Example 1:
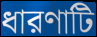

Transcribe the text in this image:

ধারণাটি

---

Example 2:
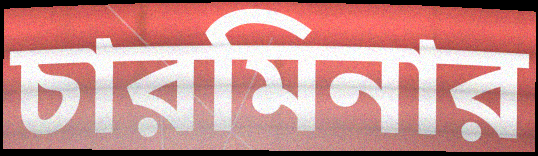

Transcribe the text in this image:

চারমিনার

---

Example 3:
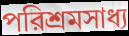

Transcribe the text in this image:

পরিশ্রমসাধ্য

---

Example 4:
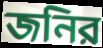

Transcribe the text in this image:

জনির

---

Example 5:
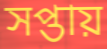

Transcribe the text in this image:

সপ্তায়